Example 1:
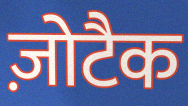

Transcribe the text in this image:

ज़ोटैक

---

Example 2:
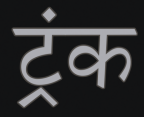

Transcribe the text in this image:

ट्रंक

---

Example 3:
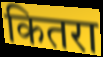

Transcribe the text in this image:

कितरा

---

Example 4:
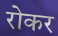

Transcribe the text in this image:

रोकर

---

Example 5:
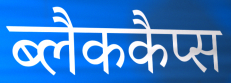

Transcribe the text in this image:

ब्लैककैप्स